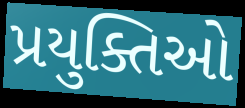
પ્રયુક્તિઓ